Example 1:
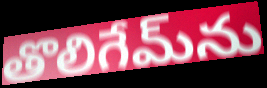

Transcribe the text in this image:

తొలిగేమ్‌ను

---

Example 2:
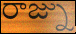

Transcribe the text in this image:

రాజ్ను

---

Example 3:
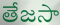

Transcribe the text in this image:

తేజసా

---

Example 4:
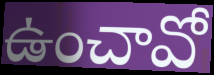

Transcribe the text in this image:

ఉంచావో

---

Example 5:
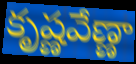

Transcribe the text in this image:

కృష్ణవేణ్ణా